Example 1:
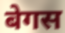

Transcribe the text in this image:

बेगस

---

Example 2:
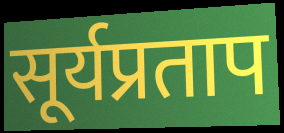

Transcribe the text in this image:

सूर्यप्रताप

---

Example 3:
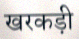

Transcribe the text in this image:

खरकड़ी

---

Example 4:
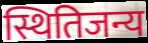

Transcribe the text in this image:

स्थितिजन्य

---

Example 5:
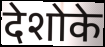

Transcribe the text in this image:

देशोके